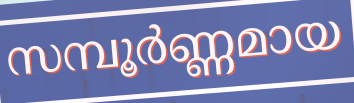
സമ്പൂർണ്ണമായ